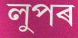
লুপৰ